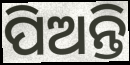
ପିଅନ୍ତି